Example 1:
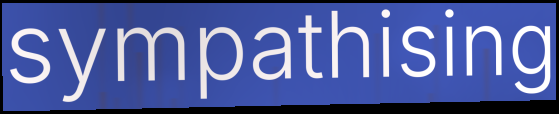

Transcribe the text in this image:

sympathising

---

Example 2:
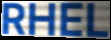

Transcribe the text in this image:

RHEL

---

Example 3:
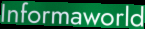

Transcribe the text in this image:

Informaworld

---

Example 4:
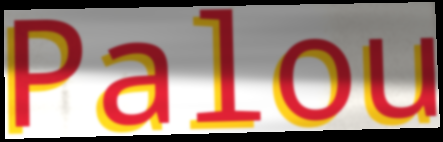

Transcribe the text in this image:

Palou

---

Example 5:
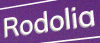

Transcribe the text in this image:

Rodolia